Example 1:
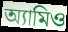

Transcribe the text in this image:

অ্যামিও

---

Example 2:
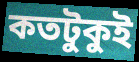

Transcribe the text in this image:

কতটুকুই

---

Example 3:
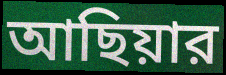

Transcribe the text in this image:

আছিয়ার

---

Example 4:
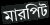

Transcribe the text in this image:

মারপিট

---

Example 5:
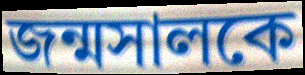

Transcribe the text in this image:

জন্মসালকে